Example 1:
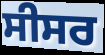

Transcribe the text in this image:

ਸੀਸਰ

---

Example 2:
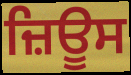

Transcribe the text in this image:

ਜ਼ਿਊਸ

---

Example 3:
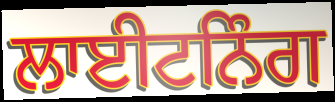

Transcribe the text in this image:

ਲਾਈਟਨਿੰਗ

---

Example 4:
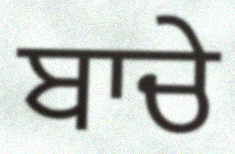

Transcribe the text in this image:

ਬਾਚੇ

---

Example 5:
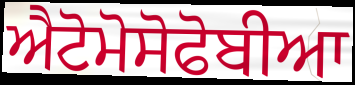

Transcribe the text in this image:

ਐਟੋਮੋਸੋਫੋਬੀਆ